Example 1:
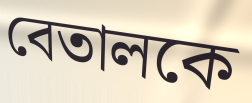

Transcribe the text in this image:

বেতালকে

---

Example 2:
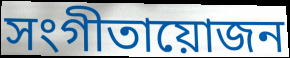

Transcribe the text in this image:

সংগীতায়োজন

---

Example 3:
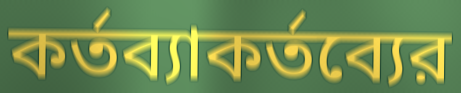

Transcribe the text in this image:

কর্তব্যাকর্তব্যের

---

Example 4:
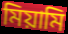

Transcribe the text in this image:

মিয়ামি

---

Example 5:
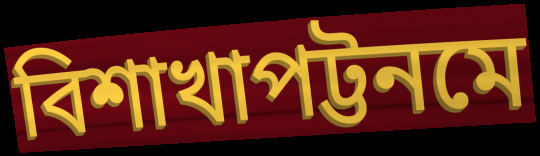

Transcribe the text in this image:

বিশাখাপট্টনমে